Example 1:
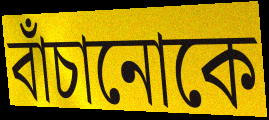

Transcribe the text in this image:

বাঁচানোকে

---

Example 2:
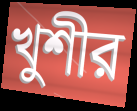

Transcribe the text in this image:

খুশীর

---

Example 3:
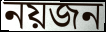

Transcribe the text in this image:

নয়জন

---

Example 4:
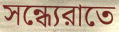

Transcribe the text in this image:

সন্ধ্যেরাতে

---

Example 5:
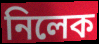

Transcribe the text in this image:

নিলেক